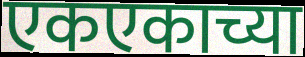
एकएकाच्या